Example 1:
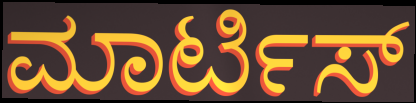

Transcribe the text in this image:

ಮಾರ್ಟಿಸ್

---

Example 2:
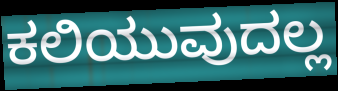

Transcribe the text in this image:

ಕಲಿಯುವುದಲ್ಲ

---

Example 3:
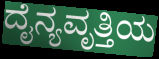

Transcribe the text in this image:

ದೈನ್ಯವೃತ್ತಿಯ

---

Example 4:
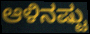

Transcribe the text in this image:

ಆಳಿನಷ್ಟು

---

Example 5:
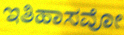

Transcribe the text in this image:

ಇತಿಹಾಸವೋ